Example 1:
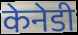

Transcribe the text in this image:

केनेडी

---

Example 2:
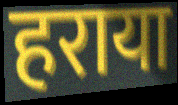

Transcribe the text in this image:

हराया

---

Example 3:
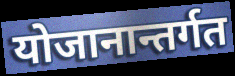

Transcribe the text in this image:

योजानान्तर्गत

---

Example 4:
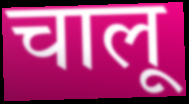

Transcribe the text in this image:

चालू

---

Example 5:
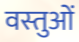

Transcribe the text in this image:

वस्‍तुओं